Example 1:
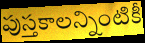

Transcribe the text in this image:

పుస్తకాలన్నింటికీ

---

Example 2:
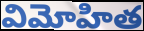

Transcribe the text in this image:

విమోహిత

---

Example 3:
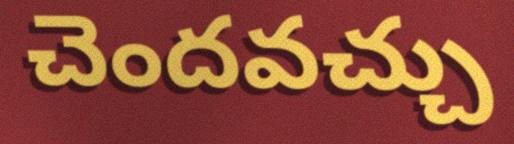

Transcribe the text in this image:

చెందవచ్చు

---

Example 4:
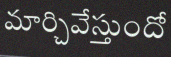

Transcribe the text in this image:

మార్చివేస్తుందో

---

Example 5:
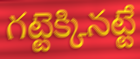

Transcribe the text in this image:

గట్టెక్కినట్టే